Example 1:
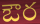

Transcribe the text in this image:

ఔర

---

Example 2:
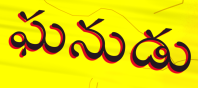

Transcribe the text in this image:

ఘనుడు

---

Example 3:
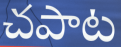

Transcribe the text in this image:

చపాట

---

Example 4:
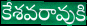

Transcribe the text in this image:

కేశవరావుకి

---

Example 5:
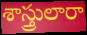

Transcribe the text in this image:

శాస్త్రులారా